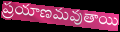
ప్రయాణమవుతాయి